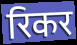
रिकर